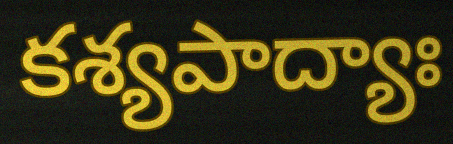
కశ్యపాద్యాః